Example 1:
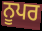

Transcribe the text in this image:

ਨੂਪਰ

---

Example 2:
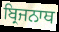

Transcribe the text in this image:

ਬ੍ਰਿਜਨਾਥ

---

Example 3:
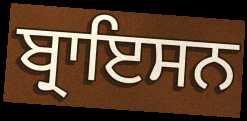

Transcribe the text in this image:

ਬ੍ਰਾਇਸਨ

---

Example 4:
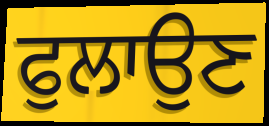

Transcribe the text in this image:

ਫੁਲਾਉਣ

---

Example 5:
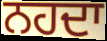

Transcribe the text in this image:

ਨਹਦਾ